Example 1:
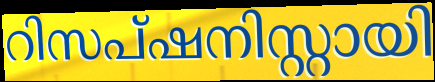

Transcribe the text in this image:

റിസപ്ഷനിസ്റ്റായി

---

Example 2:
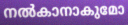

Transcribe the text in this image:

നൽകാനാകുമോ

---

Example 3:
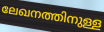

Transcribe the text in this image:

ലേഖനത്തിനുള്ള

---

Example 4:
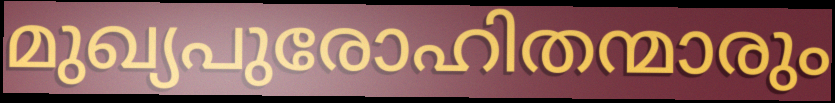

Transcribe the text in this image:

മുഖ്യപുരോഹിതന്മാരും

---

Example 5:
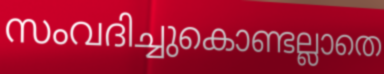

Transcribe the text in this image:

സംവദിച്ചുകൊണ്ടല്ലാതെ